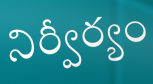
నిర్వీర్యం